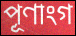
পূণাংগ